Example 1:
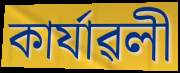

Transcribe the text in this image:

কাৰ্যাৱলী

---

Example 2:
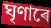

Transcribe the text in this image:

ঘৃণাৰে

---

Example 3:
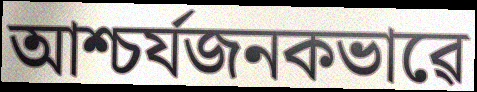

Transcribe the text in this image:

আশ্চৰ্যজনকভাৱে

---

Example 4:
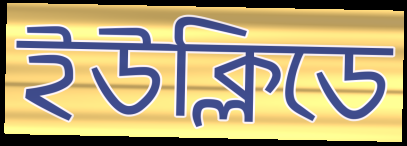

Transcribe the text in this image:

ইউক্লিডে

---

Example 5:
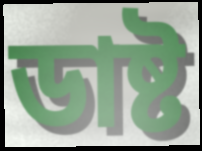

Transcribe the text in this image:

ডাষ্ট